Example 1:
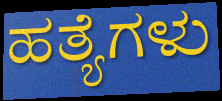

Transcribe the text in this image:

ಹತ್ಯೆಗಳು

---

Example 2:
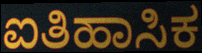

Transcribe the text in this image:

ಐತಿಹಾಸಿಕ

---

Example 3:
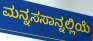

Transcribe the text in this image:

ಮನ್ನಸಸಾನ್ನಲ್ಲಿಯೆ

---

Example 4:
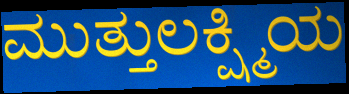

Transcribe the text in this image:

ಮುತ್ತುಲಕ್ಷ್ಮಿಯ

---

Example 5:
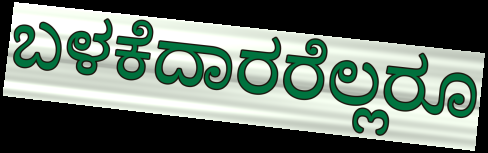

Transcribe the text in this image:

ಬಳಕೆದಾರರೆಲ್ಲರೂ